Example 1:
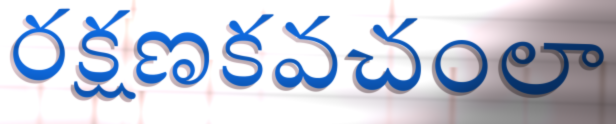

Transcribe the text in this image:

రక్షణకవచంలా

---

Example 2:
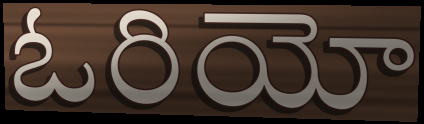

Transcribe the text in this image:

ఓరియో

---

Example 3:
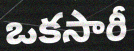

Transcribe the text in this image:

ఒకసారీ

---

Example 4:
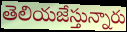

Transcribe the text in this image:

తెలియజేస్తున్నారు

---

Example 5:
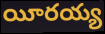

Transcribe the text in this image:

యీరయ్య